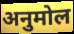
अनुमोल